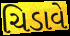
ચિડાવે